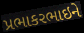
પ્રભાકરભાઇને